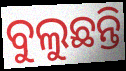
ବୁଲୁଛନ୍ତି